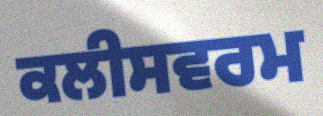
ਕਲੀਸਵਰਮ